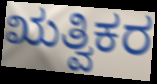
ಋತ್ವಿಕರ